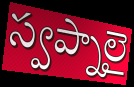
స్వప్నాలై